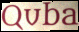
Quba